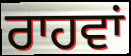
ਰਾਹਵਾਂ